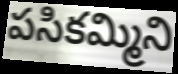
పసికమ్మిని